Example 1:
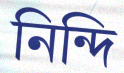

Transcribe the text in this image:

নিন্দি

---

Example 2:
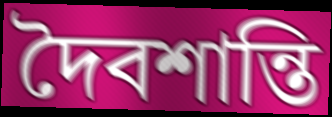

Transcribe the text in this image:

দৈবশান্তি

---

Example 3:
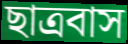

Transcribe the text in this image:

ছাত্রবাস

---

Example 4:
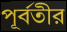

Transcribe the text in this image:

পূর্বতীর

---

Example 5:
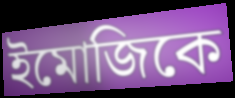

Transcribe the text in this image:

ইমোজিকে